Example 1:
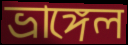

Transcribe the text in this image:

ভ্রাঙ্গেল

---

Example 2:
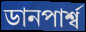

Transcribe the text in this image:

ডানপার্শ্ব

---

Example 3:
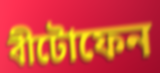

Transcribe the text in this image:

বীটোফেন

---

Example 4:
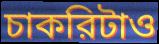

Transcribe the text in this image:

চাকরিটাও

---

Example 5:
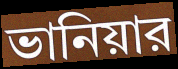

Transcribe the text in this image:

ভানিয়ার